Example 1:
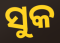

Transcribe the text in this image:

ସୁକ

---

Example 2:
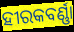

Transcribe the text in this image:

ହୀରକବର୍ଣ୍ଣା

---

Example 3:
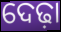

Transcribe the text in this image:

ଦେଢ଼ା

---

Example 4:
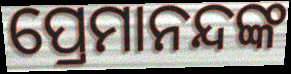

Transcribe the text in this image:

ପ୍ରେମାନନ୍ଦଙ୍କ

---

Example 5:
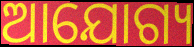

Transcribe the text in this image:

ଆଯୋଗ୍ୟ